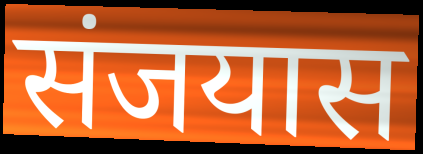
संजयास